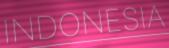
INDONESIA